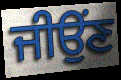
ਜੀਉਂਣ